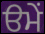
ੳਮੇਂ